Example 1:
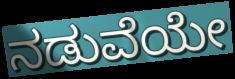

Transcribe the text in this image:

ನಡುವೆಯೇ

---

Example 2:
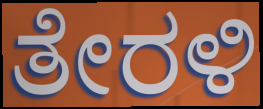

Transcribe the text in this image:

ತೇರಳಿ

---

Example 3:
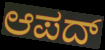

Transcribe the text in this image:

ಆಪದ್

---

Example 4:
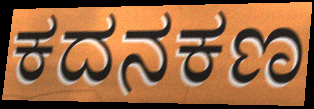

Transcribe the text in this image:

ಕದನಕಣ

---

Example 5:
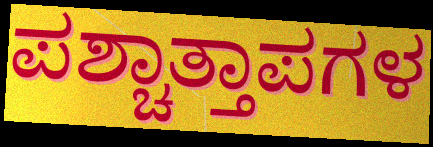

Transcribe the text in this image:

ಪಶ್ಚಾತ್ತಾಪಗಳ